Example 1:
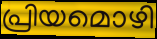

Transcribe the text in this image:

പ്രിയമൊഴി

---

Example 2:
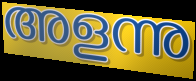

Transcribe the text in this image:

അളന്നു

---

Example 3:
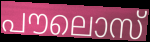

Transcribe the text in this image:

പൗലൊസ്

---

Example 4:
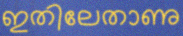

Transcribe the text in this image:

ഇതിലേതാണു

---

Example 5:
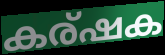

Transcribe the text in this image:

കര്ഷക